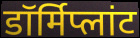
डॉर्मिप्लांट